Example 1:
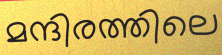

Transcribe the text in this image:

മന്ദിരത്തിലെ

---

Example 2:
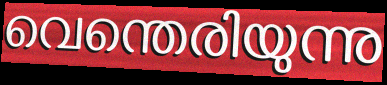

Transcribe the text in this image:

വെന്തെരിയുന്നു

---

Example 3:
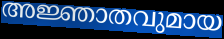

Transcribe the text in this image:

അജ്ഞാതവുമായ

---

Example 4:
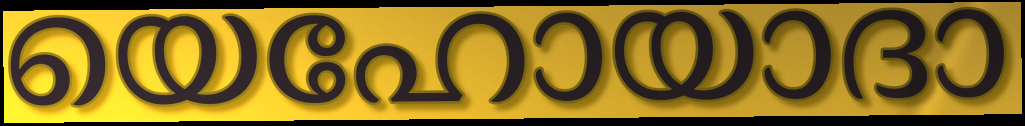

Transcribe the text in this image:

യെഹോയാദാ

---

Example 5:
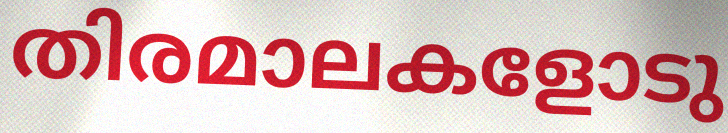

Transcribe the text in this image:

തിരമാലകളോടു